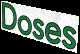
Doses